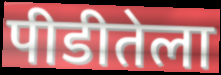
पीडीतेला